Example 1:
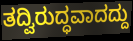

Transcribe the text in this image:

ತದ್ವಿರುದ್ಧವಾದದ್ದು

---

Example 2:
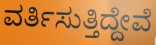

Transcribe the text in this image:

ವರ್ತಿಸುತ್ತಿದ್ದೇವೆ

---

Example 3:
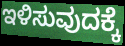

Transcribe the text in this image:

ಇಳಿಸುವುದಕ್ಕೆ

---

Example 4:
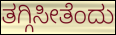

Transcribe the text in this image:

ತಗ್ಗಿಸೀತೆಂದು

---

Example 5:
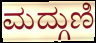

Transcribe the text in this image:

ಮದ್ಗುಣಿ